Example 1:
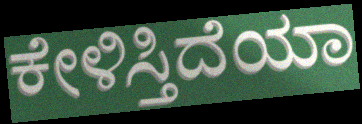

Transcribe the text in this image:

ಕೇಳಿಸ್ತಿದೆಯಾ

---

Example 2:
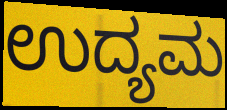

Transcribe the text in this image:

ಉದ್ಯಮ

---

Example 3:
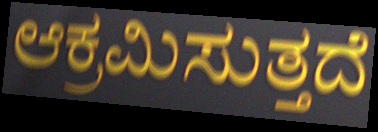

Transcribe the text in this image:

ಆಕ್ರಮಿಸುತ್ತದೆ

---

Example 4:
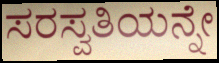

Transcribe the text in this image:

ಸರಸ್ವತಿಯನ್ನೇ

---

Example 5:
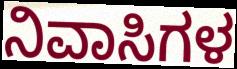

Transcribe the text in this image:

ನಿವಾಸಿಗಳ